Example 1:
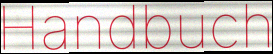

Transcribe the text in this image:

Handbuch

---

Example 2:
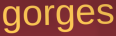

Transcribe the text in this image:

gorges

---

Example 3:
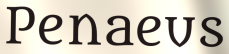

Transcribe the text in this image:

Penaeus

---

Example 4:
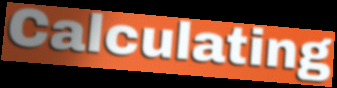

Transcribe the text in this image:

Calculating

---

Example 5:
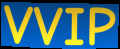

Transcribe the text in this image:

VVIP